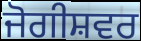
ਜੋਗੀਸ਼ਵਰ